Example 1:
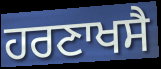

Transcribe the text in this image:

ਹਰਣਾਖਸੈ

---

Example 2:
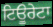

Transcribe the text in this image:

ਟਿਊਰੇਟਾ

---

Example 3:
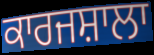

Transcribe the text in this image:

ਕਾਰਜਸ਼ਾਲਾ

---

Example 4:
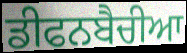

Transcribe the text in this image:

ਡੀਫਨਬੈਚੀਆ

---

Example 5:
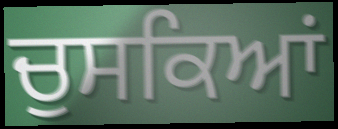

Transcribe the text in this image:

ਚੁਸਕਿਆਂ